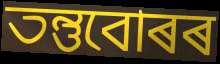
তন্তুবোৰৰ